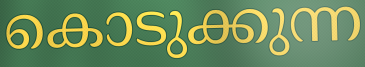
കൊടുക്കുന്ന